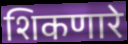
शिकणारे